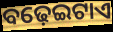
ବଢ଼େଇଟାଏ